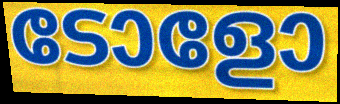
ടോളോ